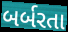
બર્બરતા